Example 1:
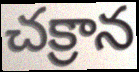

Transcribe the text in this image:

చక్రాన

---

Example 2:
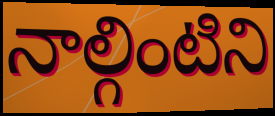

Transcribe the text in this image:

నాల్గింటిని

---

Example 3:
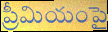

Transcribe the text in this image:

ప్రీమియంపై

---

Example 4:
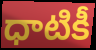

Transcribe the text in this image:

ధాటికీ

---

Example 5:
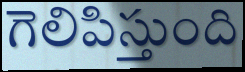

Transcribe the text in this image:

గెలిపిస్తుంది